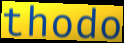
thodo